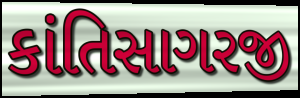
કાંતિસાગરજી